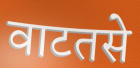
वाटतसे